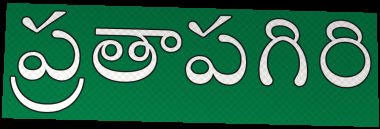
ప్రతాపగిరి